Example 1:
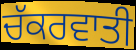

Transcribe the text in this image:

ਚੱਕਰਵਾਤੀ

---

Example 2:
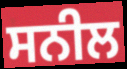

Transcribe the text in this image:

ਸਨੀਲ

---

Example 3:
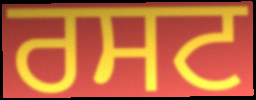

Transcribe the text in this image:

ਰਸਟ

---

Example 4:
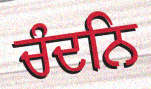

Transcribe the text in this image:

ਚੰਦਨਿ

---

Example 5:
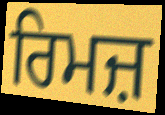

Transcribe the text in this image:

ਰਿਮਜ਼